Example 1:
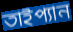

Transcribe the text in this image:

তাইপ্যান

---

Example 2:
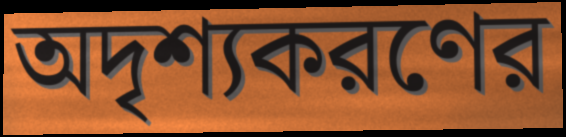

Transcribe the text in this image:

অদৃশ্যকরণের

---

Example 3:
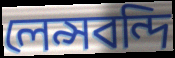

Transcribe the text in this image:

লেন্সবন্দি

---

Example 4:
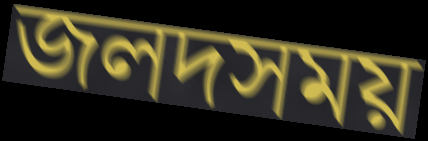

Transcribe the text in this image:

জলদসময়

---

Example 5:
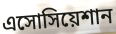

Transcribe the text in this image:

এসোসিয়েশান